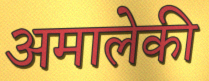
अमालेकी